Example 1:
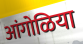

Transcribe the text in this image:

आंगोळिया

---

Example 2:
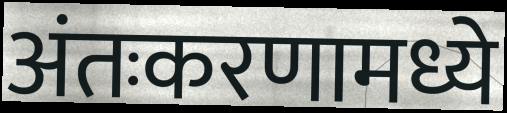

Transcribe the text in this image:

अंतःकरणामध्ये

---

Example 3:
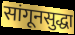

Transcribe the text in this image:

सांगूनसुद्धा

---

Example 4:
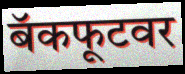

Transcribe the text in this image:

बॅकफूटवर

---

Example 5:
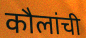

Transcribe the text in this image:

कौलांची